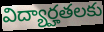
విద్యార్హతలకు